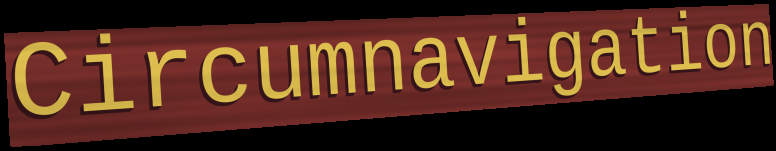
Circumnavigation